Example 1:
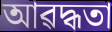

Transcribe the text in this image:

আৱদ্ধতা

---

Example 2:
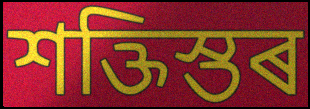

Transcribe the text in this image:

শক্তিস্তৰ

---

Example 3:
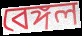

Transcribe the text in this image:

বেঙ্গল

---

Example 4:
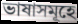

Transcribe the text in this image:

ভাষাসমূহে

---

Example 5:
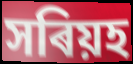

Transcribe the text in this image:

সৰিয়হ